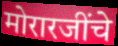
मोरारजींचे